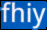
fhiy